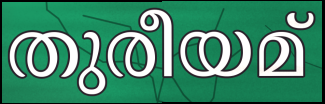
തുരീയമ്